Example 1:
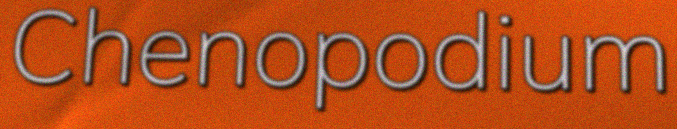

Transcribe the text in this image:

Chenopodium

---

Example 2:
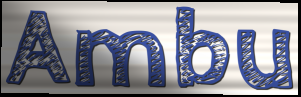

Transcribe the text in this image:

Ambu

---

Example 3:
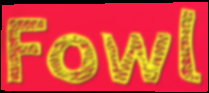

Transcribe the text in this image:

Fowl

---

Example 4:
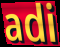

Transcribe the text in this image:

adi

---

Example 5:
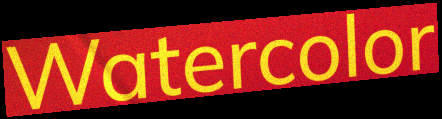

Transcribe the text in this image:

Watercolor